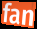
fan